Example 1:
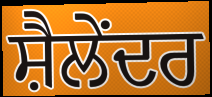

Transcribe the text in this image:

ਸ਼ੈਲੇਂਦਰ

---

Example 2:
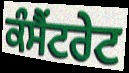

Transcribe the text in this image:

ਕੰਸੈਂਟਰੇਟ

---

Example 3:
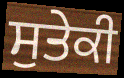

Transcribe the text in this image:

ਸੁਤੇਕੀ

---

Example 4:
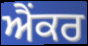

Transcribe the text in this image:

ਐਂਕਰ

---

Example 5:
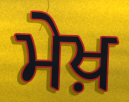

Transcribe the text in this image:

ਮੇਖ਼